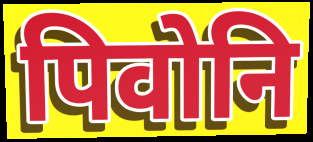
पिवोनि